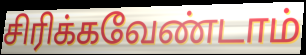
சிரிக்கவேண்டாம்